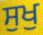
ਸੁਖੁ